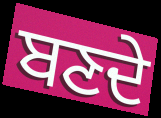
ਬਣਦੇ